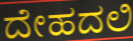
ದೇಹದಲಿ